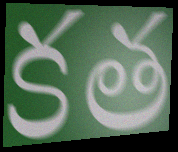
కత